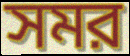
সমর